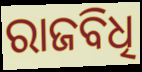
ରାଜବିଧି